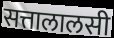
सत्तालालसी